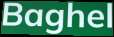
Baghel